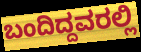
ಬಂದಿದ್ದವರಲ್ಲಿ